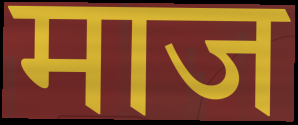
माज